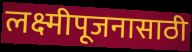
लक्ष्मीपूजनासाठी